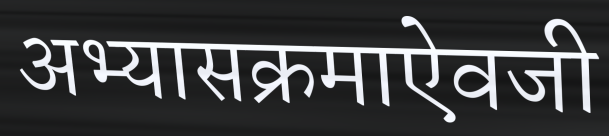
अभ्यासक्रमाऐवजी